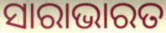
ସାରାଭାରତ